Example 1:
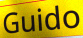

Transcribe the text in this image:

Guido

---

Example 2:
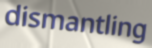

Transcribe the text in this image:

dismantling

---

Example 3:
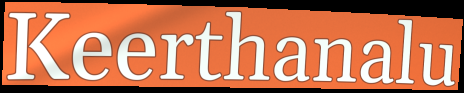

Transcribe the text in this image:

Keerthanalu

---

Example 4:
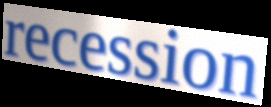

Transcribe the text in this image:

recession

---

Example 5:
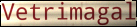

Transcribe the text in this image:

Vetrimagal